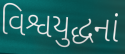
વિશ્વયુદ્ધનાં